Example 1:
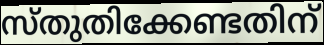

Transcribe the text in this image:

സ്തുതിക്കേണ്ടതിന്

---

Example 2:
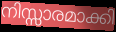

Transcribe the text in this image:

നിസ്സാരമാക്കി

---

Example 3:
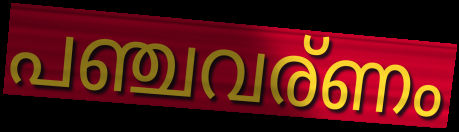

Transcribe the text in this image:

പഞ്ചവര്ണം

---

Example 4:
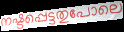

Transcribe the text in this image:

നഷ്ടപ്പെട്ടതുപോലെ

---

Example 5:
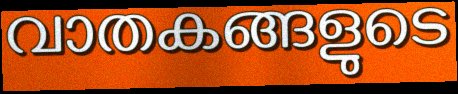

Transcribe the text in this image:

വാതകങ്ങളുടെ